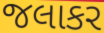
જલાકર